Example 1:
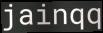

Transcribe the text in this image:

jainqq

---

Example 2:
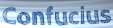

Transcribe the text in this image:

Confucius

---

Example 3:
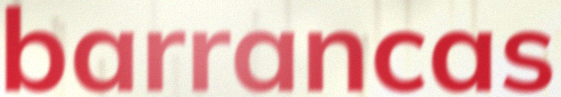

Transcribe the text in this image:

barrancas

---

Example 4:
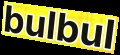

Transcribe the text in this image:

bulbul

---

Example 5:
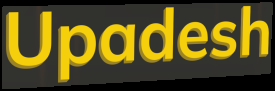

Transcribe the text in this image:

Upadesh